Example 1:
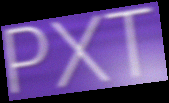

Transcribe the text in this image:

PXT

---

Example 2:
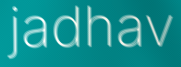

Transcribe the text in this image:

jadhav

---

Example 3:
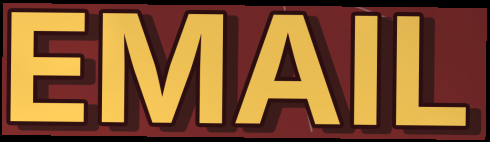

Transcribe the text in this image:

EMAIL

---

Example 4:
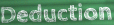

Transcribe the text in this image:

Deduction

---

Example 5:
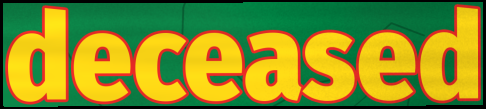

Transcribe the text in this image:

deceased